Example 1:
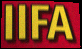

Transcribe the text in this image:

IIFA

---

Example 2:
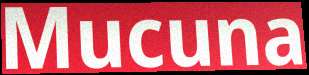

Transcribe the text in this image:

Mucuna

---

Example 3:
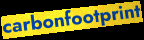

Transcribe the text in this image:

carbonfootprint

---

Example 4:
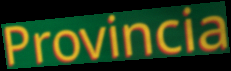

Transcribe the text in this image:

Provincia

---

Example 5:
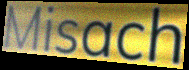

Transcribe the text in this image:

Misach